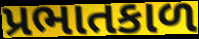
પ્રભાતકાળ